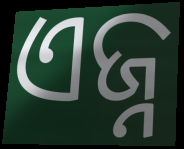
ଏଜ୍ନ